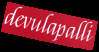
devulapalli